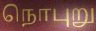
நொபுறு